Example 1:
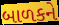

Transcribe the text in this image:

બાળકને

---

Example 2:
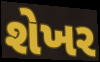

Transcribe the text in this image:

શેખર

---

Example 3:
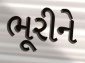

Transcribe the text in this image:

ભૂરીને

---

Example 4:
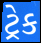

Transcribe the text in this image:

ટ્રેક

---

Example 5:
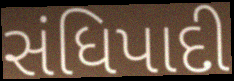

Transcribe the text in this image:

સંધિપાદી